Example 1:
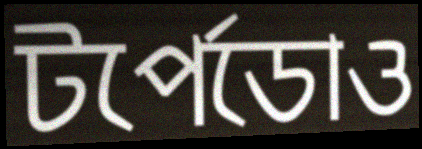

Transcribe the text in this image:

টর্পেডোও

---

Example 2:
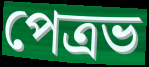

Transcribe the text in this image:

পেত্রভ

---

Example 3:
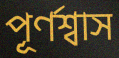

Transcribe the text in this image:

পূর্ণশ্বাস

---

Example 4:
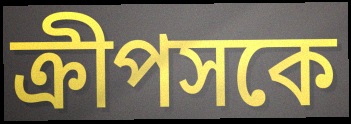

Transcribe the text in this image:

ক্রীপসকে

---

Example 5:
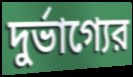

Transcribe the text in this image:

দুর্ভাগ্যের